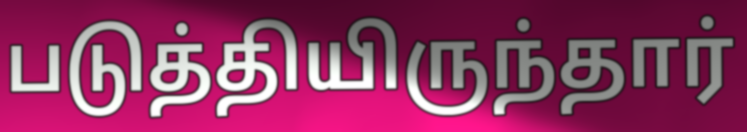
படுத்தியிருந்தார்